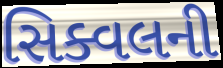
સિક્વલની